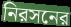
নিরসনের